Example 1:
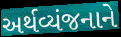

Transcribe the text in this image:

અર્થવ્યંજનાને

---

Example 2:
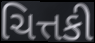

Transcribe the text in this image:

ચિત્તકી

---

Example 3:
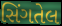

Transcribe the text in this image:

સિંગતેલ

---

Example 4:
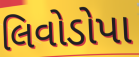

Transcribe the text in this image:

લિવોડોપા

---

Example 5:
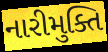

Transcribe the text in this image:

નારીમુક્તિ